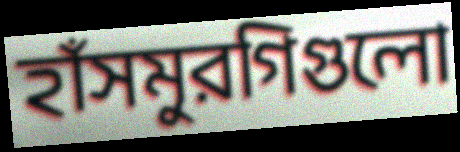
হাঁসমুরগিগুলো